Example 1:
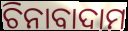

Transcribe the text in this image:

ଚିନାବାଦାମ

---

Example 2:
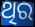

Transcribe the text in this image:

ଥିର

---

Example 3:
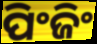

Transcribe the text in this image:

ପିଂଜିଂ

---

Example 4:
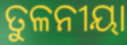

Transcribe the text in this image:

ତୁଳନୀୟା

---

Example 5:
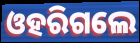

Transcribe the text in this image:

ଓହରିଗଲେ